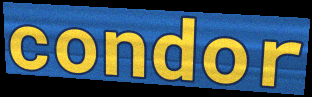
condor